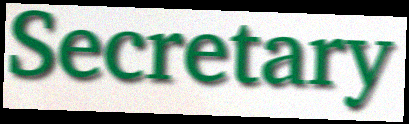
Secretary